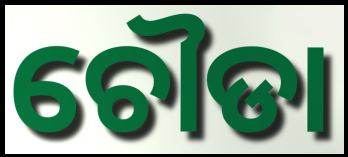
ଚୌଡା